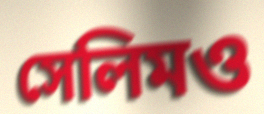
সেলিমও